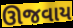
ઊજવાય